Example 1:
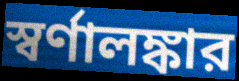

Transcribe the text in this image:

স্বর্ণালঙ্কার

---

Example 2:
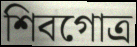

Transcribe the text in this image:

শিবগোত্র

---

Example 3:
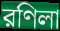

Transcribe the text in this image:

রণিলা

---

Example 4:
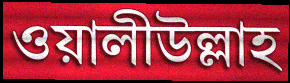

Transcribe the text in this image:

ওয়ালীউল্লাহ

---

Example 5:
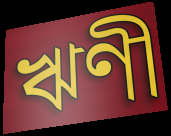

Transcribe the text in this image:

ঋণী